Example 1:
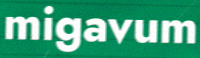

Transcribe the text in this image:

migavum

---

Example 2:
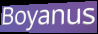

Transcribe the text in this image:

Boyanus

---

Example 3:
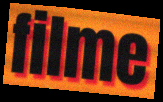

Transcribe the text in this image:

filme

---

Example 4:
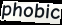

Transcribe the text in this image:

phobic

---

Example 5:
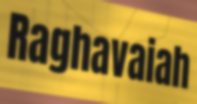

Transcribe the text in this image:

Raghavaiah